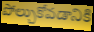
పోల్చుకోవడానికి